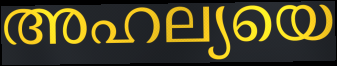
അഹല്യയെ